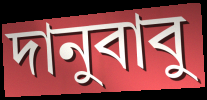
দানুবাবু